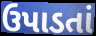
ઉપાડતાં